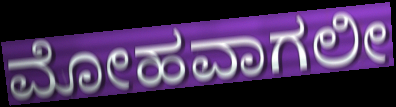
ಮೋಹವಾಗಲೀ